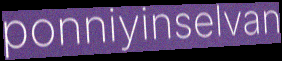
ponniyinselvan